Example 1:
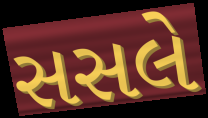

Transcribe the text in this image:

સસલે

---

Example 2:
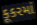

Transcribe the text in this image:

કૂકરમાં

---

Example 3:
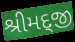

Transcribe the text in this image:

શ્રીમદ્જી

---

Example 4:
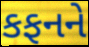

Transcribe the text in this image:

કફનને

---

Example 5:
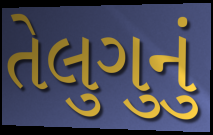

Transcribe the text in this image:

તેલુગુનું